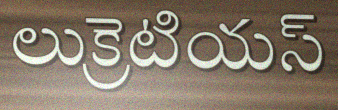
లుక్రెటియస్